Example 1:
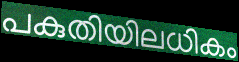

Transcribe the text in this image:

പകുതിയിലധികം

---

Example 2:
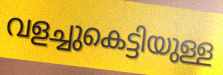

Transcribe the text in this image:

വളച്ചുകെട്ടിയുള്ള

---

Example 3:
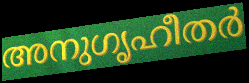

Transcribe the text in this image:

അനുഗൃഹീതർ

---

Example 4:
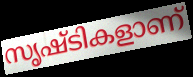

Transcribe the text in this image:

സൃഷ്ടികളാണ്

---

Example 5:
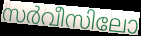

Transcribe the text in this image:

സർവീസിലോ